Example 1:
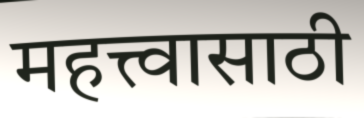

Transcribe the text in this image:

महत्त्वासाठी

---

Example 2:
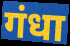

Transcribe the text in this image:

गंधा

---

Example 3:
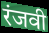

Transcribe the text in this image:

रंजवी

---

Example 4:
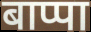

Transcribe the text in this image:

बाप्पा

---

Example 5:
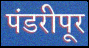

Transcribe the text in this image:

पंडरीपूर